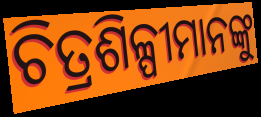
ଚିତ୍ରଶିଳ୍ପୀମାନଙ୍କୁ